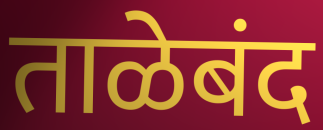
ताळेबंद